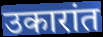
उकारांत